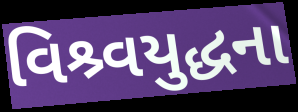
વિશ્ર્વયુદ્ધના